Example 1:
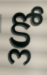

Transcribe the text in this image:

క్లో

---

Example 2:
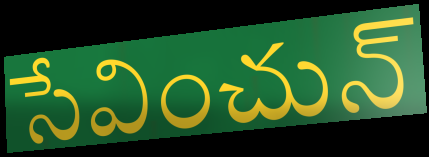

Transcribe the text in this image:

సేవించున్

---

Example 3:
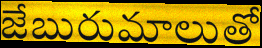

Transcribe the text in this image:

జేబురుమాలుతో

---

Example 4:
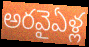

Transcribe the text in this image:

అరవైఏళ్ల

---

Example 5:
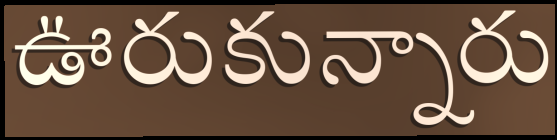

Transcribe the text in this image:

ఊరుకున్నారు